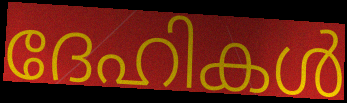
ദേഹികൾ